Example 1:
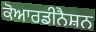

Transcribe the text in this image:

ਕੋਆਰਡੀਨੈਸ਼ਨ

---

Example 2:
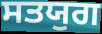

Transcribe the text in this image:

ਸਤਯੁਗ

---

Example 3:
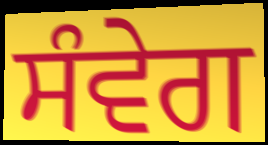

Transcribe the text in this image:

ਸੰਵੇਗ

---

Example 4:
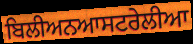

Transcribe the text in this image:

ਬਿਲੀਅਨਆਸਟਰੇਲੀਆ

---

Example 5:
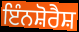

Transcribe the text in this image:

ਇੰਨਸ਼ੋਰੈਸ਼